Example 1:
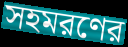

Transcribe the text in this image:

সহমরণের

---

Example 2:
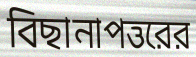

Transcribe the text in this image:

বিছানাপত্তরের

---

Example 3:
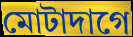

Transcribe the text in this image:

মোটাদাগে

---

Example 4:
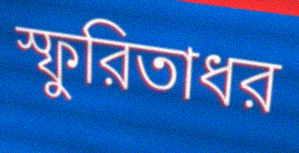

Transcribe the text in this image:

স্ফুরিতাধর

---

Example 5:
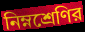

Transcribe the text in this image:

নিম্নশ্রেণির